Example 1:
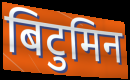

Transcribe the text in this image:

बिटुमिन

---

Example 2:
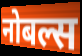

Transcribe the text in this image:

नोबल्स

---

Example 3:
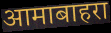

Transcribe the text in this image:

आमाबाहरा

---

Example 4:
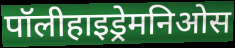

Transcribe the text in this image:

पॉलीहाइड्रेमनिओस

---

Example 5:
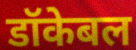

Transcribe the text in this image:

डॉकेबल